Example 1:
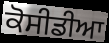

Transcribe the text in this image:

ਕੋਸੀਡੀਆ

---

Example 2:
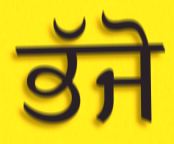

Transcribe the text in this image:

ਭੱਜੋ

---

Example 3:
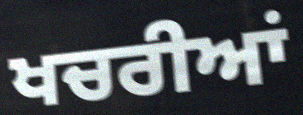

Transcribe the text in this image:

ਖਚਰੀਆਂ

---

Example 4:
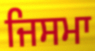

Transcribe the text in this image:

ਜਿਸਮਾ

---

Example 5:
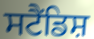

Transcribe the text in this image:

ਸਟੈਂਡਿਸ਼